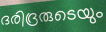
ദരിദ്രരുടെയും